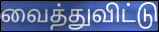
வைத்துவிட்டு